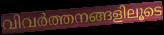
വിവർത്തനങ്ങളിലൂടെ